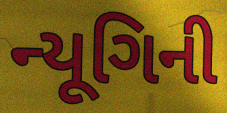
ન્યૂગિની